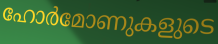
ഹോർമോണുകളുടെ